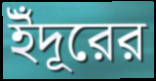
ইঁদূরের